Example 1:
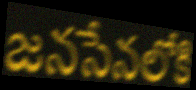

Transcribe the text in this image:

జనసేనలోకి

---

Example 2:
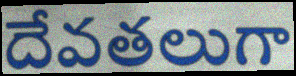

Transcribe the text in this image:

దేవతలుగా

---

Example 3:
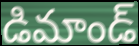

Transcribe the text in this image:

డిమాండ్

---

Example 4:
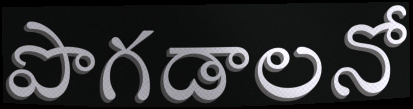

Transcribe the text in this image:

పొగడాలనో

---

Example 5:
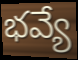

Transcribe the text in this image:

భవ్యే